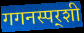
गगनस्पर्शी